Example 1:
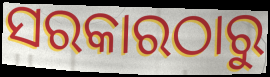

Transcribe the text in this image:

ସରକାରଠାରୁ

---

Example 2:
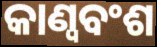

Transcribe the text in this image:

କାଣ୍ୱବଂଶ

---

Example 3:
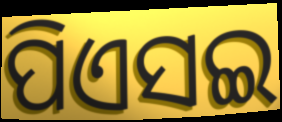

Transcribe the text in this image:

ପିଏସଇ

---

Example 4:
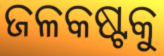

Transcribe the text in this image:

ଜଳକଷ୍ଟକୁ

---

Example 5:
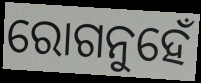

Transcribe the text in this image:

ରୋଗନୁହେଁ